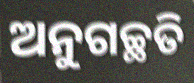
ଅନୁଗଚ୍ଛତି